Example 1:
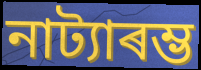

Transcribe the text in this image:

নাট্যাৰম্ভ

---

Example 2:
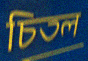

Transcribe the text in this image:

চিতল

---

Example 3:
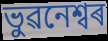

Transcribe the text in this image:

ভুৱনেশ্বৰ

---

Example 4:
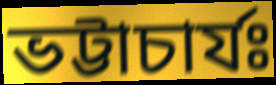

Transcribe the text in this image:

ভট্টাচাৰ্যঃ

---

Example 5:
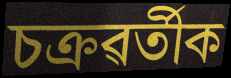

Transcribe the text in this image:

চক্ৰৱৰ্তীক